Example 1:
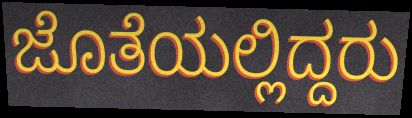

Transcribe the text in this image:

ಜೊತೆಯಲ್ಲಿದ್ದರು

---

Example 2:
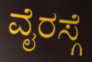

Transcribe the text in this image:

ವೈರಸ್ಗೆ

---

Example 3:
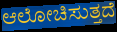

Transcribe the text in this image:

ಆಲೋಚಿಸುತ್ತದೆ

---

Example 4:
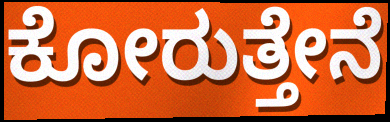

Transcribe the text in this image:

ಕೋರುತ್ತೇನೆ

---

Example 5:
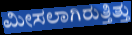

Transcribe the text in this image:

ಮೀಸಲಾಗಿರುತ್ತಿತ್ತು